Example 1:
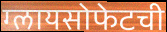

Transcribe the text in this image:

ग्लायसोफेटची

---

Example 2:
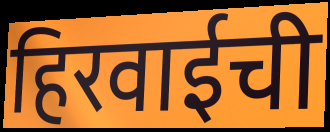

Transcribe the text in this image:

हिरवाईची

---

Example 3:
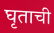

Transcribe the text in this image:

घृताची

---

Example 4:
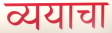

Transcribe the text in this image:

व्ययाचा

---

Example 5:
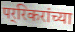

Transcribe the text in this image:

पर्रिकरांच्या